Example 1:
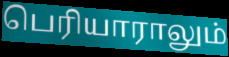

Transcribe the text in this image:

பெரியாராலும்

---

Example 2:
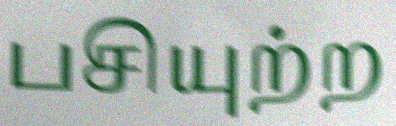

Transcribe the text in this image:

பசியுற்ற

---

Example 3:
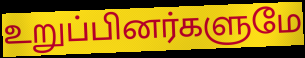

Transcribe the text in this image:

உறுப்பினர்களுமே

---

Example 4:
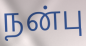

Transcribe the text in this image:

நன்பு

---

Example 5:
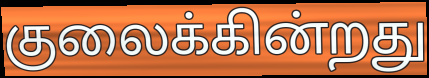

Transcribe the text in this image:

குலைக்கின்றது